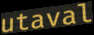
utaval